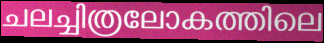
ചലച്ചിത്രലോകത്തിലെ